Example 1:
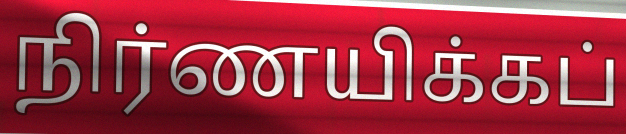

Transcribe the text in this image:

நிர்ணயிக்கப்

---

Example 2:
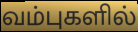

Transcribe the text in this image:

வம்புகளில்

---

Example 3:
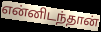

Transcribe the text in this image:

என்னிடந்தான்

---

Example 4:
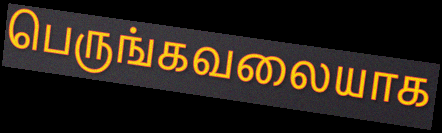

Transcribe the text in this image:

பெருங்கவலையாக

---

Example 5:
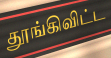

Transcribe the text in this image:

தூங்கிவிட்ட